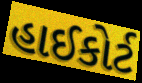
હાઈકોર્ટ